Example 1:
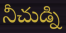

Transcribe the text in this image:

నీచుడ్ని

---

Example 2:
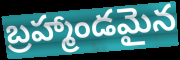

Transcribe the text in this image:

బ్రహ్మాండమైన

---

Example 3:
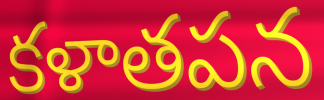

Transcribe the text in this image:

కళాతపన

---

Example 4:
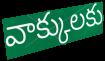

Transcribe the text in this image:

వాక్కులకు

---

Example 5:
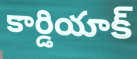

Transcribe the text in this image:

కార్డియాక్